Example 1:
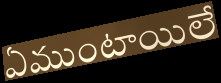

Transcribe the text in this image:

ఏముంటాయిలే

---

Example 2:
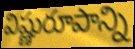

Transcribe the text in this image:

విష్ణురూపాన్ని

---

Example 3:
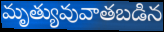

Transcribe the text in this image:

మృత్యువువాతబడిన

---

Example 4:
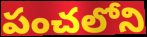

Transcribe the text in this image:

పంచలోని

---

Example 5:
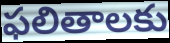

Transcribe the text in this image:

ఫలితాలకు